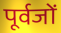
पूर्वजों